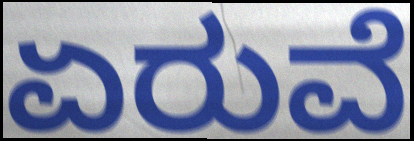
ಏರುವೆ